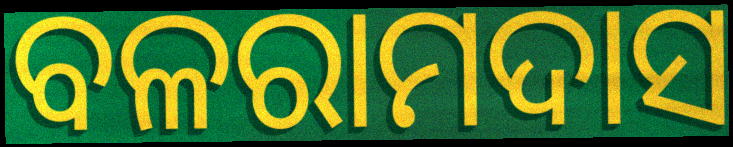
ବଳରାମଦାସ